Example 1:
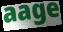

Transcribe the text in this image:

aage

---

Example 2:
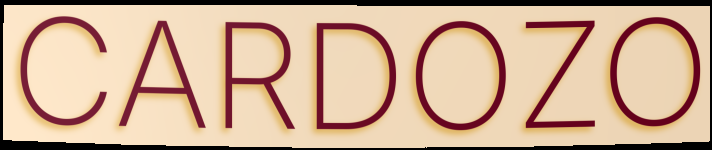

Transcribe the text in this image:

CARDOZO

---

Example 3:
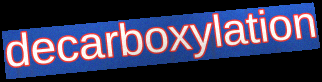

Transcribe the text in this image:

decarboxylation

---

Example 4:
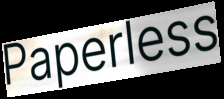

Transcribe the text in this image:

Paperless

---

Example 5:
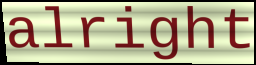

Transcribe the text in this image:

alright